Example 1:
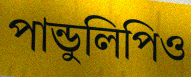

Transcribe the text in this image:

পান্ডুলিপিও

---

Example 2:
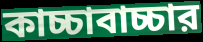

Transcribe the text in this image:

কাচ্চাবাচ্চার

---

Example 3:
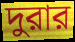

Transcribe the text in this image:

দুরার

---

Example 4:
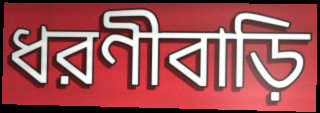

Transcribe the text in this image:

ধরণীবাড়ি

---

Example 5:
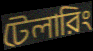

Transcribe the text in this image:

টেলারিং